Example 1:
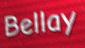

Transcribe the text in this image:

Bellay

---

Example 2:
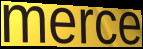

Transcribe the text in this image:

merce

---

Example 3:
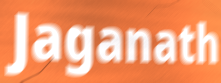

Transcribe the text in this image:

Jaganath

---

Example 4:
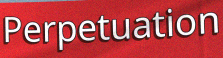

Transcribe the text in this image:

Perpetuation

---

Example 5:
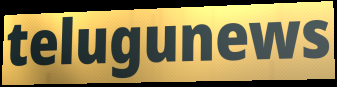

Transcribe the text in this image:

telugunews